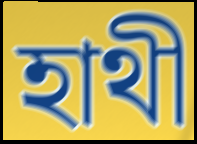
হাথী